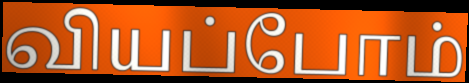
வியப்போம்